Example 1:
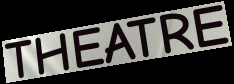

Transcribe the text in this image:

THEATRE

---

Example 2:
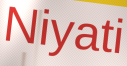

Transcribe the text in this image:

Niyati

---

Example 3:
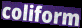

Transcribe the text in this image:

coliform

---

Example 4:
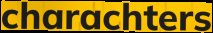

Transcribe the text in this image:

charachters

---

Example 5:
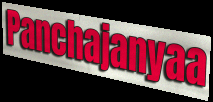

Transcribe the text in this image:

Panchajanyaa